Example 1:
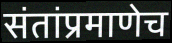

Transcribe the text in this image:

संतांप्रमाणेच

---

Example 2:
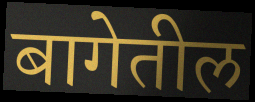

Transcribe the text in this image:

बागेतील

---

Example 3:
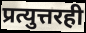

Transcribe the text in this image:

प्रत्युत्तरही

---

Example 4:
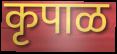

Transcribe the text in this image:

कृपाळ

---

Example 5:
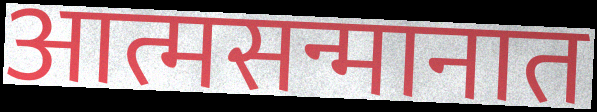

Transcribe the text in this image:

आत्मसन्मानात